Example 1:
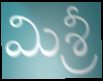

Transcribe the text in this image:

మిశ్రీ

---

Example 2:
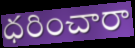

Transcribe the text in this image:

ధరించారా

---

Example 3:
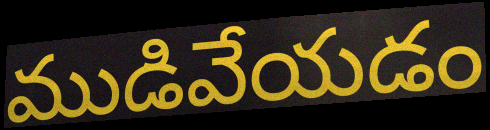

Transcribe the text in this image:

ముడివేయడం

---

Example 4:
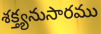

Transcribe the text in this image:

శక్త్యనుసారము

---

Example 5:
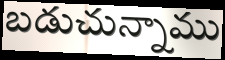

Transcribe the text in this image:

బడుచున్నాము